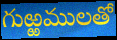
గుఱ్ఱములతో